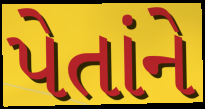
પેતાંને